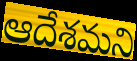
ఆదేశమని